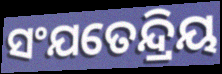
ସଂଯତେନ୍ଦ୍ରିୟ